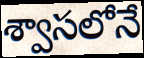
శ్వాసలోనే